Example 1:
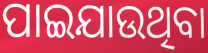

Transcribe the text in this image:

ପାଇଯାଉଥିବା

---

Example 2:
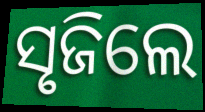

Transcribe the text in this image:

ସୃଜିଲେ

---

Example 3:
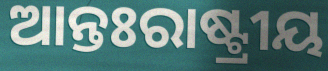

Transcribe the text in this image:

ଆନ୍ତଃରାଷ୍ଟ୍ରୀୟ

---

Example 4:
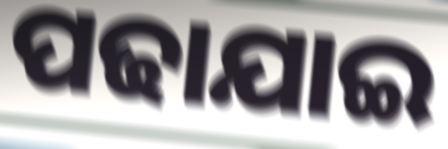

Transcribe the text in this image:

ପଢାଯାଇ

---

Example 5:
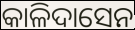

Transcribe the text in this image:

କାଳିଦାସେନ